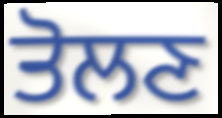
ਤੋਲਣ